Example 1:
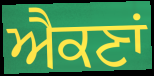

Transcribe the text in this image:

ਐਕਣਾਂ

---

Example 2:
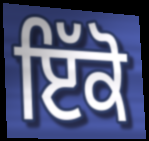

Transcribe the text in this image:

ਇੱਕੋ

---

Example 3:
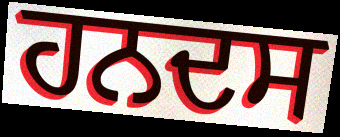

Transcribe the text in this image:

ਹਨਦਸ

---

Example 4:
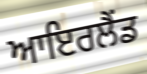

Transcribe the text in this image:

ਆਇਰਲੈਂਡ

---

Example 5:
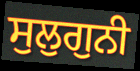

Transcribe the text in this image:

ਸੁਲੁਗੁਨੀ